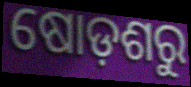
ଷୋଡ଼ଶରୁ